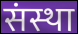
संस्था